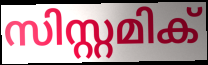
സിസ്റ്റമിക്